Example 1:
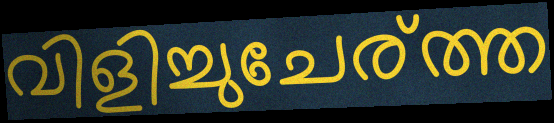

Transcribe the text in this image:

വിളിച്ചുചേര്ത്ത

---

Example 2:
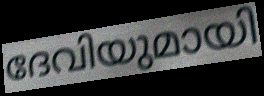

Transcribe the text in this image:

ദേവിയുമായി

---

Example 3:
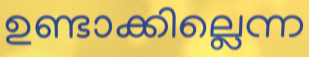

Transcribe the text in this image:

ഉണ്ടാക്കില്ലെന്ന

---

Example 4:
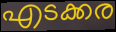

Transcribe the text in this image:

എടക്കര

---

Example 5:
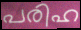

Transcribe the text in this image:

പരിഹ